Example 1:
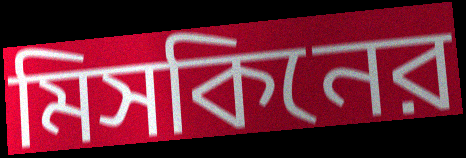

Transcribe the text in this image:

মিসকিনের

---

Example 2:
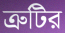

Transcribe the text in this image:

ত্রুটির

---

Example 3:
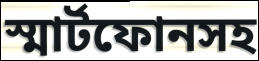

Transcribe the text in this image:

স্মার্টফোনসহ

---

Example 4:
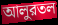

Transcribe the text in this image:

আলুরতল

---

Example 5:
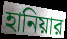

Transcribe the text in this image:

হানিয়ার